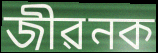
জীৱনক